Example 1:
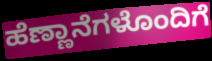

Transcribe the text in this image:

ಹೆಣ್ಣಾನೆಗಳೊಂದಿಗೆ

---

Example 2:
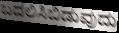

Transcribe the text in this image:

ಬದಲಿಸಿಬಿಡುವುದು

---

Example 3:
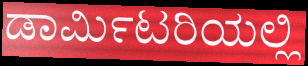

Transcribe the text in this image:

ಡಾರ್ಮಿಟರಿಯಲ್ಲಿ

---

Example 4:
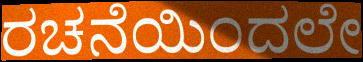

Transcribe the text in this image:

ರಚನೆಯಿಂದಲೇ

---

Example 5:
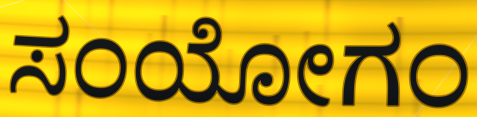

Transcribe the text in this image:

ಸಂಯೋಗಂ